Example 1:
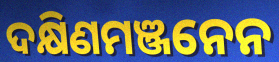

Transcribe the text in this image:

ଦକ୍ଷିଣମଞ୍ଜନେନ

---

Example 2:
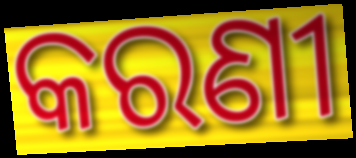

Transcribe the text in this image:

କରଣୀ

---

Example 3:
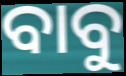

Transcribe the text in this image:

ବାବୁ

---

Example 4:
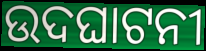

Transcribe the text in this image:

ଉଦଘାଟନୀ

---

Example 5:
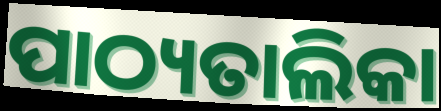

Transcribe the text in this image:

ପାଠ୍ୟତାଲିକା